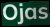
Ojas